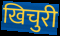
खिचुरी